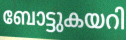
ബോട്ടുകയറി